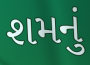
શમનું